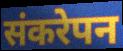
संकरेपन